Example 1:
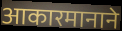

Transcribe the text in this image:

आकारमानाने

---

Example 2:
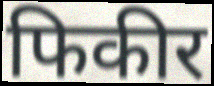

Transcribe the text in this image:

फिकीर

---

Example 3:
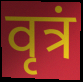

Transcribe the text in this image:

वृत्रं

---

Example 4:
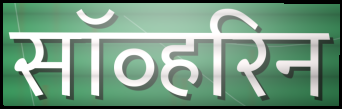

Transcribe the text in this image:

सॉव्हरिन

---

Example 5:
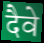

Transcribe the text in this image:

दैवे